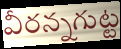
వీరన్నగుట్ట